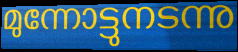
മുന്നോട്ടുനടന്നു